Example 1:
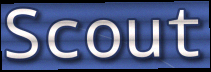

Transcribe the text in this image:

Scout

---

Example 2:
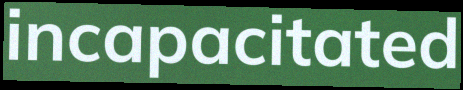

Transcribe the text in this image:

incapacitated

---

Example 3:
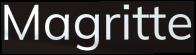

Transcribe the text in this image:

Magritte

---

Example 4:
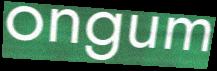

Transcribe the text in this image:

ongum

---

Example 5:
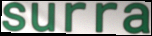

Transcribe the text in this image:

surra